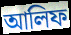
আলিফ